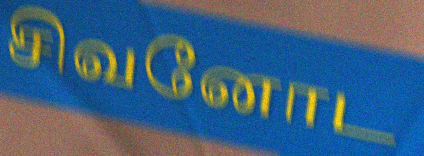
சிவனோட